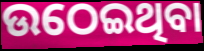
ଉଠେଇଥିବା